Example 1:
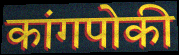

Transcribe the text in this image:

कांगपोकी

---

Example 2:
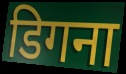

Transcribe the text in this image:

डिगना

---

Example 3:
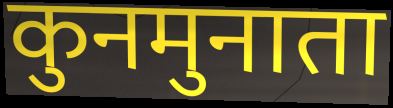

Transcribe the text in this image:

कुनमुनाता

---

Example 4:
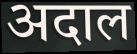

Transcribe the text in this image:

अदाल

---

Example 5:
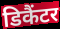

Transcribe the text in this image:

डिकैंटर